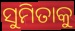
ସୁମିତାକୁ